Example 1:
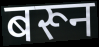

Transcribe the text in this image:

बरून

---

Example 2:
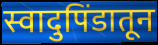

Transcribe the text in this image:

स्वादुपिंडातून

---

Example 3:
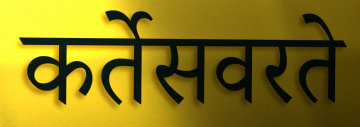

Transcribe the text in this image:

कर्तेसवरते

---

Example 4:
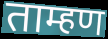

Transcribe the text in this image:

ताम्हण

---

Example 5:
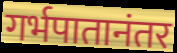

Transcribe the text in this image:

गर्भपातानंतर